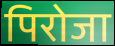
पिरोजा